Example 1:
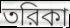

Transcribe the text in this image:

তরিকা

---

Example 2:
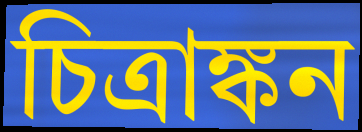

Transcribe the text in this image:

চিত্রাঙ্কন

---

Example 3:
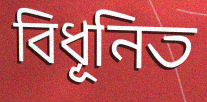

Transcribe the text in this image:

বিধূনিত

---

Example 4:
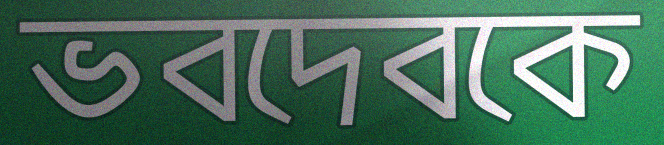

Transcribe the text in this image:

ভবদেবকে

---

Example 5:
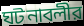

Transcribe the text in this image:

ঘটনাবলীর